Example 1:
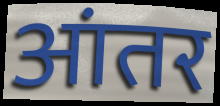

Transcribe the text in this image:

आंतर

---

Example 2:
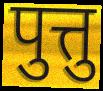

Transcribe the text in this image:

पुत्तु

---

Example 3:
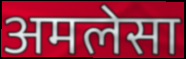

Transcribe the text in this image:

अमलेसा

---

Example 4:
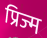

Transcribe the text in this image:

प्रिज्म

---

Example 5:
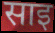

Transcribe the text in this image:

साइ